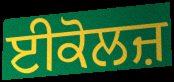
ਈਕੋਲਜ਼